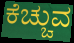
ಕೆಚ್ಚುವ